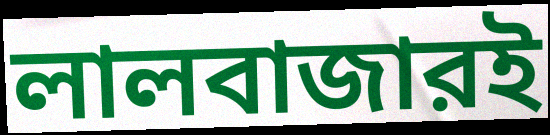
লালবাজারই